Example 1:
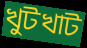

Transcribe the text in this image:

খুটখাট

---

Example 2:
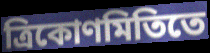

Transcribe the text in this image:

ত্রিকোণমিতিতে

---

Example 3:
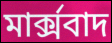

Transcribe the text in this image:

মার্ক্সবাদ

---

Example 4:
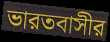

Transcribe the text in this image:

ভারতবাসীর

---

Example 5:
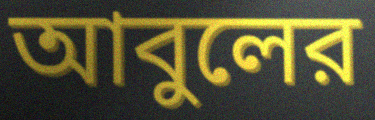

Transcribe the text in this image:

আবুলের